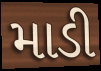
માડી